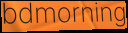
bdmorning